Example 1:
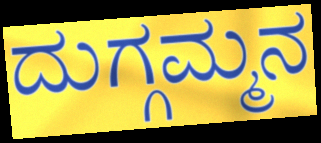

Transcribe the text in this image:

ದುಗ್ಗಮ್ಮನ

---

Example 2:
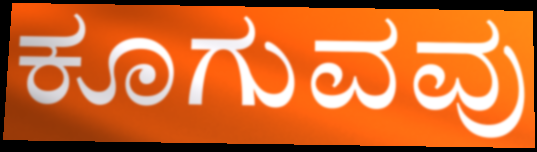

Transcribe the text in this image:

ಕೂಗುವವು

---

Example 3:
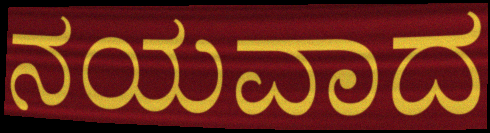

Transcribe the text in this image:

ನಯವಾದ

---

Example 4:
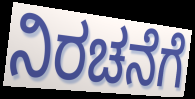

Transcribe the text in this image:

ನಿರಚನೆಗೆ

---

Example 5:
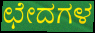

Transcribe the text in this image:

ಛೇದಗಳ